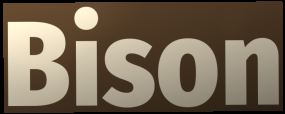
Bison